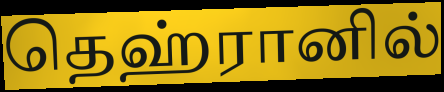
தெஹ்ரானில்